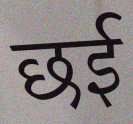
छई